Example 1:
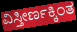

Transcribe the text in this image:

ವಿಸ್ತೀರ್ಣಕ್ಕಿಂತ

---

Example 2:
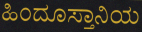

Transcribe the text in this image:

ಹಿಂದೂಸ್ತಾನಿಯ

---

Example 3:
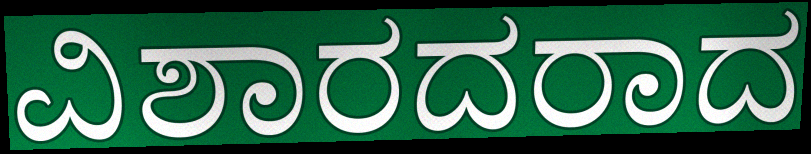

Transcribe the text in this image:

ವಿಶಾರದರಾದ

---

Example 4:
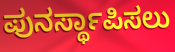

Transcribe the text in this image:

ಪುನರ್ಸ್ಥಾಪಿಸಲು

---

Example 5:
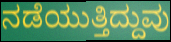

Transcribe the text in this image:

ನಡೆಯುತ್ತಿದ್ದುವು